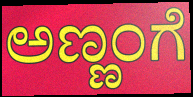
ಅಣ್ಣಂಗೆ